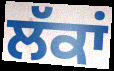
ਲੱਕਾਂ